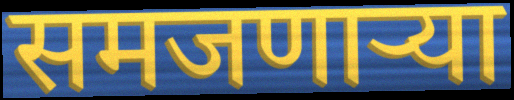
समजणाऱ्या